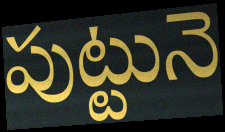
పుట్టునె